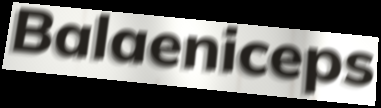
Balaeniceps